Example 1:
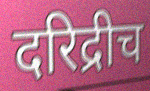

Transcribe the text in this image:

दरिद्रीच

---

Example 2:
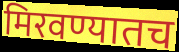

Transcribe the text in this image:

मिरवण्यातच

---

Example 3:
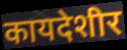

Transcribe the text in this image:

कायदेशीर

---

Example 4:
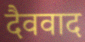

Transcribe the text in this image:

दैववाद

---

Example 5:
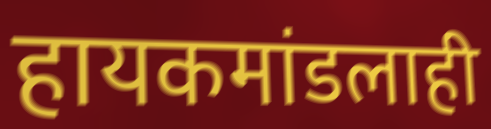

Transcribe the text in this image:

हायकमांडलाही